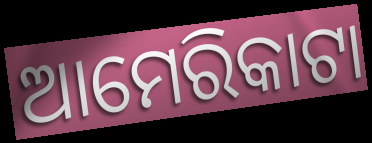
ଆମେରିକାଟା